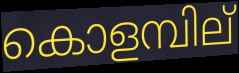
കൊളമ്പില്